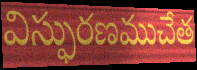
విస్ఫురణముచేత